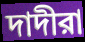
দাদীরা